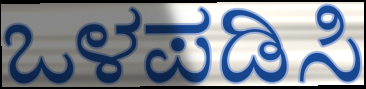
ಒಳಪಡಿಸಿ